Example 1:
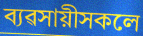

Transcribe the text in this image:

ব্যৱসায়ীসকলে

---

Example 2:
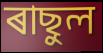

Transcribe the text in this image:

ৰাছুল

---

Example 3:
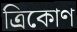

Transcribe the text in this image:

ত্ৰিকোণ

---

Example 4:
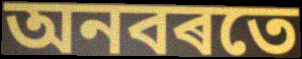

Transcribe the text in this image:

অনবৰতে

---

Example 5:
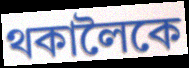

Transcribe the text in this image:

থকালৈকে